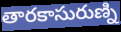
తారకాసురుణ్ని